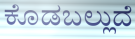
ಕೊಡಬಲ್ಲುದೆ